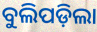
ବୁଲିପଡ଼ିଲା